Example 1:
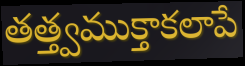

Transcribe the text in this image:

తత్త్వముక్తాకలాపే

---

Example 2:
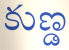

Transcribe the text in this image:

కుణ్డ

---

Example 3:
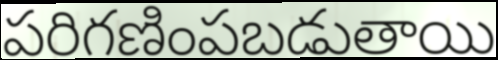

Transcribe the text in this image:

పరిగణింపబడుతాయి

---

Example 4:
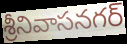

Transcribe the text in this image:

శ్రీనివాసనగర్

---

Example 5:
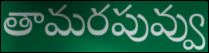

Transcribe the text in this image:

తామరపువ్వు